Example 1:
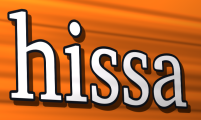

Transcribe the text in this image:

hissa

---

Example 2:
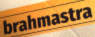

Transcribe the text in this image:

brahmastra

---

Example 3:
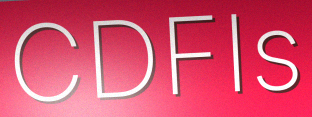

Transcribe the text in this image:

CDFIs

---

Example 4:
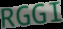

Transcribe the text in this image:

RGGI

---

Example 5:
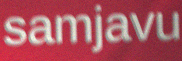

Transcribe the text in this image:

samjavu